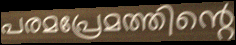
പരമപ്രേമത്തിന്റെ